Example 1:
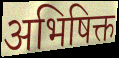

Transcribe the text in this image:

अभिषिक्त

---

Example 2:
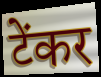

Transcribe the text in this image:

टेंकर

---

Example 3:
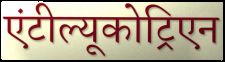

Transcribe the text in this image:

एंटील्यूकोट्रिएन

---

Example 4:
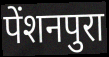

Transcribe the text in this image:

पेंशनपुरा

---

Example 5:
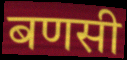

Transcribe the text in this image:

बणसी